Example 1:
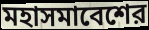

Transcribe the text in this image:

মহাসমাবেশের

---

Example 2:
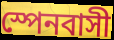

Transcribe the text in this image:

স্পেনবাসী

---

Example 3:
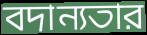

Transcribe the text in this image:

বদান্যতার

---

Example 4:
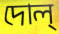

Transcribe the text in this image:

দোল্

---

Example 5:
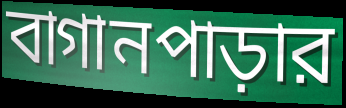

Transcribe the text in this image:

বাগানপাড়ার